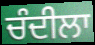
ਚੰਦੀਲਾ